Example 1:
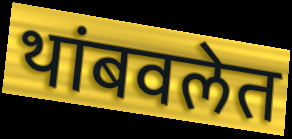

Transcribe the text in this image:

थांबवलेत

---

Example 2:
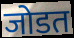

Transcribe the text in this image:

जोडत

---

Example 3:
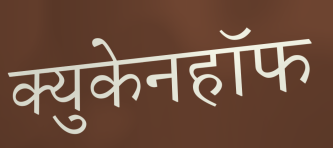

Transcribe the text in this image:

क्युकेनहॉफ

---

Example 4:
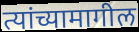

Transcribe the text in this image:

त्यांच्यामागील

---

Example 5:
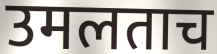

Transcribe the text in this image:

उमलताच